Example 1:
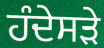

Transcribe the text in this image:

ਹੰਦੇਸੜੇ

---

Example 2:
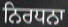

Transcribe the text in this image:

ਨਿਰਧਨਾ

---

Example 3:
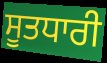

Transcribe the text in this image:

ਸੂਤਧਾਰੀ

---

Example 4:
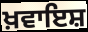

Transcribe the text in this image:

ਖ਼ਵਾਇਸ਼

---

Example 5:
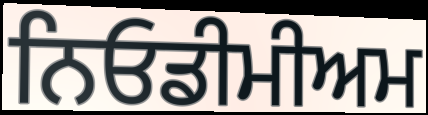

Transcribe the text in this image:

ਨਿਓਡੀਮੀਅਮ